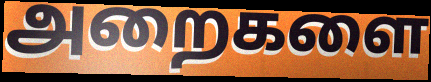
அறைகளை